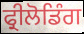
ਫ੍ਰੀਲੋਡਿੰਗ